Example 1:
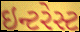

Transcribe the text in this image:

ઇન્ટરેસ્ટ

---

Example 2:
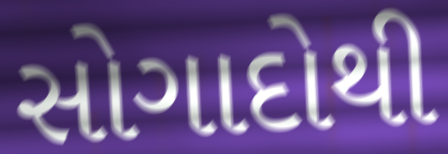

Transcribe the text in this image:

સોગાદોથી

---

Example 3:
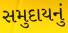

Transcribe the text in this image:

સમુદાયનું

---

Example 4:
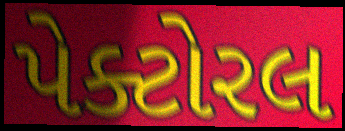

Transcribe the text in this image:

પેક્ટોરલ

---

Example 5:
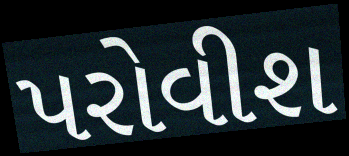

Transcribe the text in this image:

પરોવીશ